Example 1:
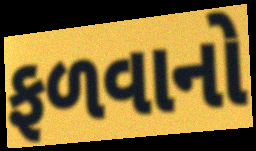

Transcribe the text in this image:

ફળવાનો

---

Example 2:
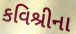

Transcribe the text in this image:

કવિશ્રીના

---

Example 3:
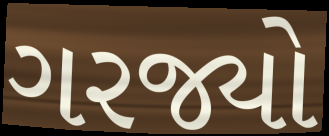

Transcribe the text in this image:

ગરજ્યો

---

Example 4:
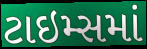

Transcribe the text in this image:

ટાઇમ્સમાં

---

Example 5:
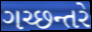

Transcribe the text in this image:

ગચ્છન્તરે